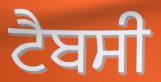
ਟੈਬਸੀ